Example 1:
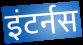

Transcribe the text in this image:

इंटर्नस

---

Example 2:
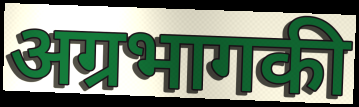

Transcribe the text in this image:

अग्रभागकी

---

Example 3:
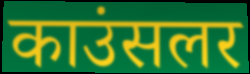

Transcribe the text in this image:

काउंसलर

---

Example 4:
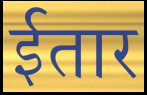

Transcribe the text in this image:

ईतार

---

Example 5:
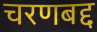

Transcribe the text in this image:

चरणबद्द